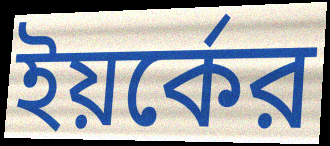
ইয়র্কের